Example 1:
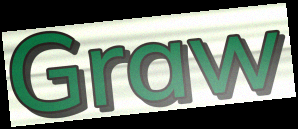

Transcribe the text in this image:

Graw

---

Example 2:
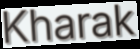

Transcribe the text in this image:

Kharak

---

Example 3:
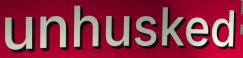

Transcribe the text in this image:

unhusked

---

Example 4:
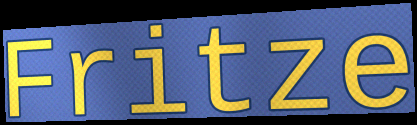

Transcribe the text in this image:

Fritze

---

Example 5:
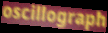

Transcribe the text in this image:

oscillograph